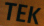
TEK